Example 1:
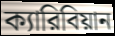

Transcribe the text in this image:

ক্যারিবিয়ান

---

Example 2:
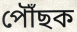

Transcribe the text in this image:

পৌঁছক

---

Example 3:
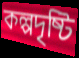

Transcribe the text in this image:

কল্পদৃষ্টি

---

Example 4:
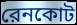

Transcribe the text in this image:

রেনকোট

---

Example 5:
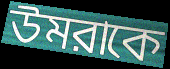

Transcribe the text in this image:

উমরাকে